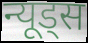
न्यूड्स